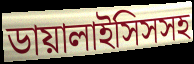
ডায়ালাইসিসসহ